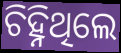
ଚିହ୍ନିଥିଲେ